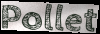
Pollet